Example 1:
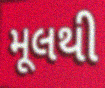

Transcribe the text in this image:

મૂલથી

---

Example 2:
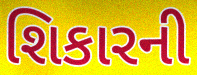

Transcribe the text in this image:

શિકારની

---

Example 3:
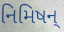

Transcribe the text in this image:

નિમિષન્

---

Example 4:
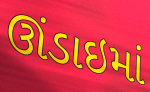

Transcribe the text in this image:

ઊંડાઇમાં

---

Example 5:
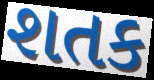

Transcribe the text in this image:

શતક